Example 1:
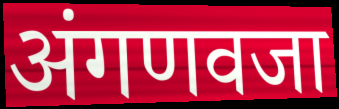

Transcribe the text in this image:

अंगणवजा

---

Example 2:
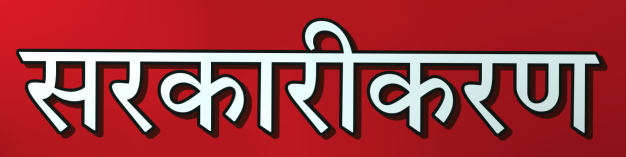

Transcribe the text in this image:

सरकारीकरण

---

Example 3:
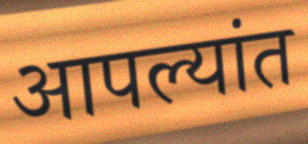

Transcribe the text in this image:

आपल्यांत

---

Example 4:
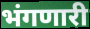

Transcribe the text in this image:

भंगणारी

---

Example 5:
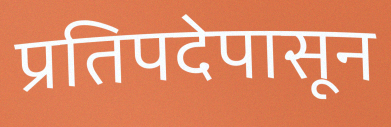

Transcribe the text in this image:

प्रतिपदेपासून